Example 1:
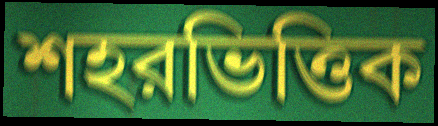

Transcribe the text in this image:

শহরভিত্তিক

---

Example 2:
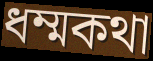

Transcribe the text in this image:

ধম্মকথা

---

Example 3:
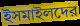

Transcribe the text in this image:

ইসমাইলদের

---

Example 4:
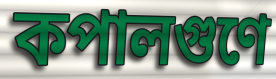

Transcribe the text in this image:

কপালগুণে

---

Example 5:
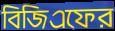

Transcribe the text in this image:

বিজিএফের